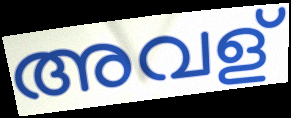
അവള്